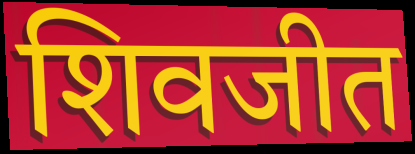
शिवजीत